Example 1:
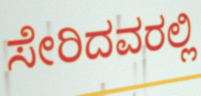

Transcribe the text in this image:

ಸೇರಿದವರಲ್ಲಿ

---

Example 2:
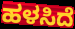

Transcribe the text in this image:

ಹಳಸಿದೆ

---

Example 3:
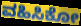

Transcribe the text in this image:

ವಹಿಸಿಕೋ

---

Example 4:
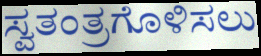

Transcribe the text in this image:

ಸ್ವತಂತ್ರಗೊಳಿಸಲು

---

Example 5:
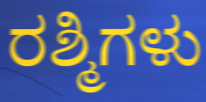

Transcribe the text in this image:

ರಶ್ಮಿಗಳು